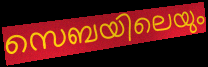
സെബയിലെയും